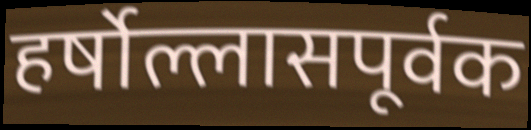
हर्षोल्लासपूर्वक